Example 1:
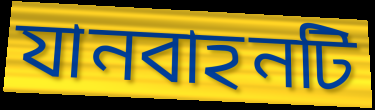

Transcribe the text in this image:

যানবাহনটি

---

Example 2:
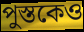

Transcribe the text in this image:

পুস্তকেও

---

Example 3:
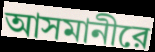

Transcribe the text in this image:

আসমানীরে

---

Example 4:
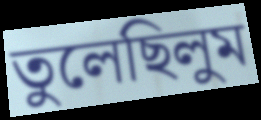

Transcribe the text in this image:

তুলেছিলুম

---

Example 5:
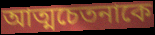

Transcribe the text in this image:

আত্মচেতনাকে